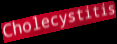
Cholecystitis